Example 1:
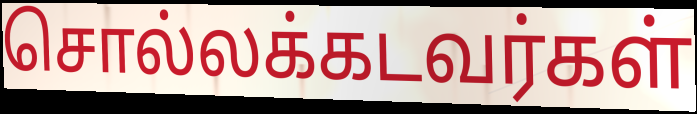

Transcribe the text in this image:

சொல்லக்கடவர்கள்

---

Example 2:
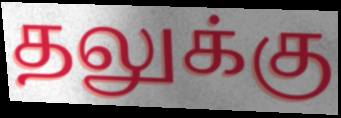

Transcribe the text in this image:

தலுக்கு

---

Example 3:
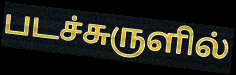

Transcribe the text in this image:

படச்சுருளில்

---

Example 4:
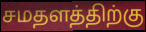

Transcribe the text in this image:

சமதளத்திற்கு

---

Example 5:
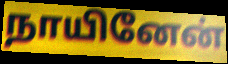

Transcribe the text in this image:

நாயினேன்